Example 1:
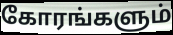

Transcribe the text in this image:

கோரங்களும்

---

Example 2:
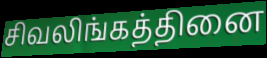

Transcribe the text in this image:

சிவலிங்கத்தினை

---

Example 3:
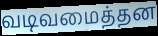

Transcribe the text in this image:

வடிவமைத்தன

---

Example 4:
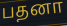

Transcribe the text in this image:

பதனா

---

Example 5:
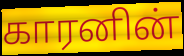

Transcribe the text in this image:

காரனின்